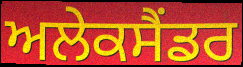
ਅਲੇਕਸੈਂਡਰ